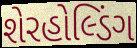
શેરહોલ્ડિંગ